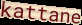
kattane